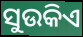
ସୁଉକିଏ